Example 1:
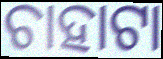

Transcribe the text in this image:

ଚାହାଟା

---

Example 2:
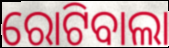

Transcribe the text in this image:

ରୋଟିବାଲା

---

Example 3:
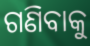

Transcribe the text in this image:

ଗଣିବାକୁ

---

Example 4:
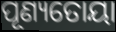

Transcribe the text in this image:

ପୂଣ୍ୟତୋୟା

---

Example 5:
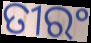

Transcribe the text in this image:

ତୀରଂ